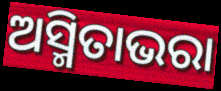
ଅସ୍ମିତାଭରା